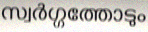
സ്വർഗ്ഗത്തോടും